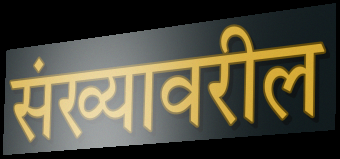
संख्यावरील